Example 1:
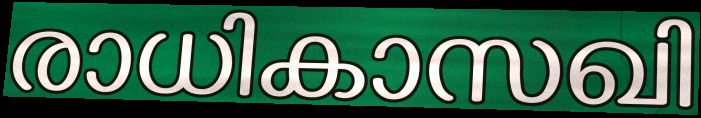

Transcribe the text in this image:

രാധികാസഖി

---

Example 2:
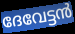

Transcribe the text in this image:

ദേവേട്ടൻ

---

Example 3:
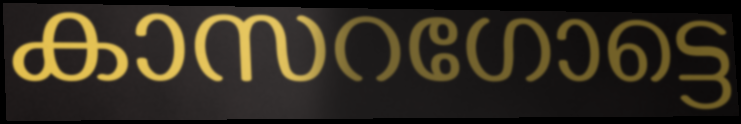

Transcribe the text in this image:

കാസറഗോട്ടെ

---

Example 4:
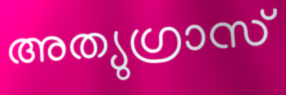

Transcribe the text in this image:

അത്യുഗ്രാസ്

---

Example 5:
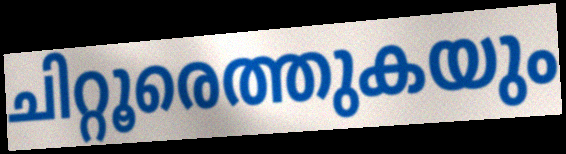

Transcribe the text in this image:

ചിറ്റൂരെത്തുകയും